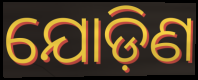
ଯୋଡ଼ିଣ